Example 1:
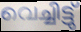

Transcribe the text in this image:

വെച്ചിട്ടു്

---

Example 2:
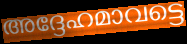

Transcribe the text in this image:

അദ്ദേഹമാവട്ടെ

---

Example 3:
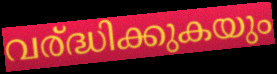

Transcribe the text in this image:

വര്ദ്ധിക്കുകയും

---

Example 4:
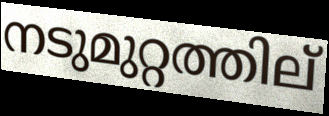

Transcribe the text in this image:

നടുമുറ്റത്തില്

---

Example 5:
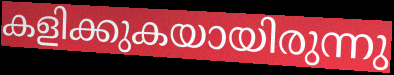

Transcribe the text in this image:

കളിക്കുകയായിരുന്നു